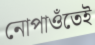
নোপাওঁতেই